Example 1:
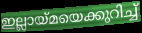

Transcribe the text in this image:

ഇല്ലായ്മയെക്കുറിച്ച്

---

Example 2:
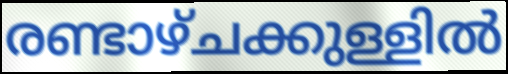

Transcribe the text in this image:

രണ്ടാഴ്ചക്കുള്ളിൽ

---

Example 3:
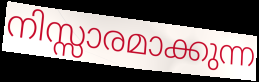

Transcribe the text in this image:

നിസ്സാരമാക്കുന്ന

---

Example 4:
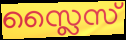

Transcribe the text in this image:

സ്ലൈസ്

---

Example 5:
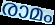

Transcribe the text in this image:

രാമം